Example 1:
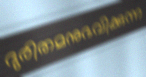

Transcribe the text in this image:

ദുരിതമനുഭവിക്കുന്ന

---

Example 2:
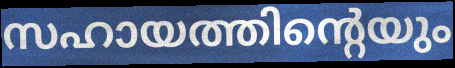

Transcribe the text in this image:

സഹായത്തിന്റെയും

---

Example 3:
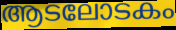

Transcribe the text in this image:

ആടലോടകം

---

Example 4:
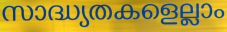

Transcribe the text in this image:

സാദ്ധ്യതകളെല്ലാം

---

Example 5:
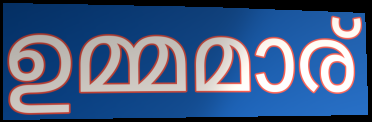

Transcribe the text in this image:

ഉമ്മമാര്